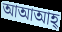
আআআহ্